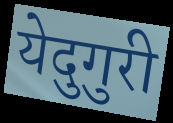
येदुगुरी